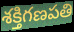
శక్తిగణపతి